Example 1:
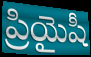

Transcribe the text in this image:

ప్రియైషీ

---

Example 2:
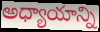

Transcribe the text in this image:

అధ్యాయాన్ని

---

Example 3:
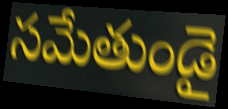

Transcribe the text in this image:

సమేతుండై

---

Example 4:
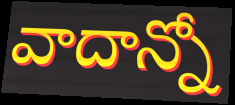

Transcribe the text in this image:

వాదాన్నో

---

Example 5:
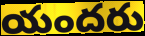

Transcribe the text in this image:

యందరు